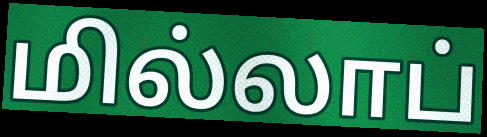
மில்லாப்